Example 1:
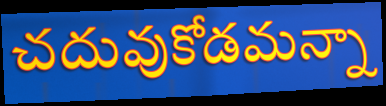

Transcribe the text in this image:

చదువుకోడమన్నా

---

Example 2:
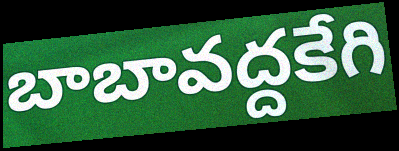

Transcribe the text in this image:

బాబావద్దకేగి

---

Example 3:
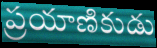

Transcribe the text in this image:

ప్రయాణికుడు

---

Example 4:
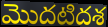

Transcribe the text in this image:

మొదటిదశ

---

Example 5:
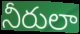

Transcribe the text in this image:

నీరులా